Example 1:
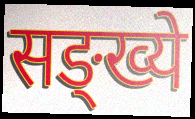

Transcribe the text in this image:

सङ्ख्ये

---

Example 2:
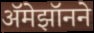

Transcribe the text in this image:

ॲमेझॉनने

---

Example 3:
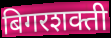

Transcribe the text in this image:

बिगरशक्ती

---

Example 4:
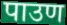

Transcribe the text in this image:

पाउण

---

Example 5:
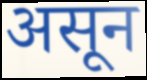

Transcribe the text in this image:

असून